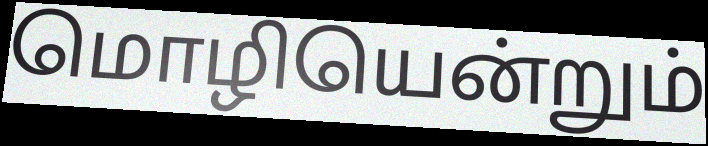
மொழியென்றும்